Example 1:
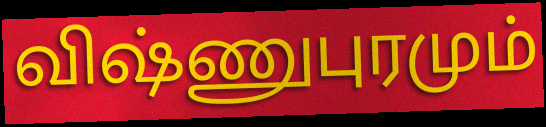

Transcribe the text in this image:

விஷ்ணுபுரமும்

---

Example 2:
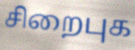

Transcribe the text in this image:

சிறைபுக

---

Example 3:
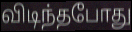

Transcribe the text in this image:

விடிந்தபோது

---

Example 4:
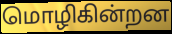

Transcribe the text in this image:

மொழிகின்றன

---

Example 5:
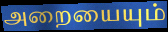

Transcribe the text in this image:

அறையையும்